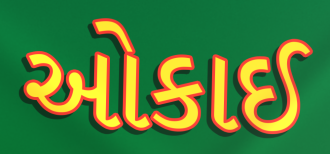
ઓકાઈ